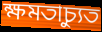
ক্ষমতাচ্যুত